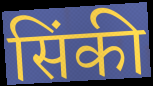
सिंकी